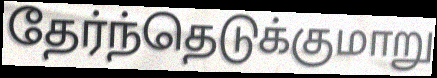
தேர்ந்தெடுக்குமாறு